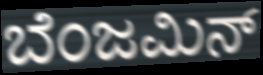
ಬೆಂಜಮಿನ್